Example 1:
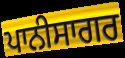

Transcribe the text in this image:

ਪਾਨੀਸਾਗਰ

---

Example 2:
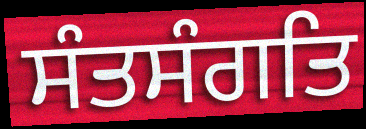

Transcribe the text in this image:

ਸੰਤਸੰਗਤਿ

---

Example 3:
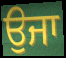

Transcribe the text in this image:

ਉਜਾ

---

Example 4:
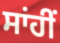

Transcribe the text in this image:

ਸਾਂਹੀਂ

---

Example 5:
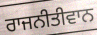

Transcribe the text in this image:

ਰਾਜਨੀਤੀਵਾਨ